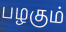
பழகும்